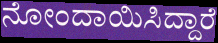
ನೋಂದಾಯಿಸಿದ್ದಾರೆ